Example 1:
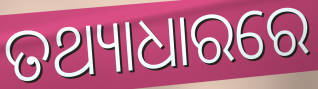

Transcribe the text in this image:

ତଥ୍ୟାଧାରରେ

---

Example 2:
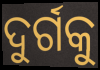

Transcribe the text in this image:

ଦୁର୍ଗକୁ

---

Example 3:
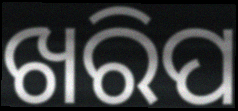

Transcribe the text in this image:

ଖରିପ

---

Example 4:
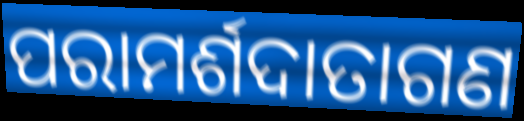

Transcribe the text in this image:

ପରାମର୍ଶଦାତାଗଣ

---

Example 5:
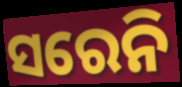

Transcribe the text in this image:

ସରେନି